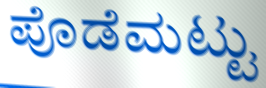
ಪೊಡೆಮಟ್ಟು